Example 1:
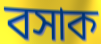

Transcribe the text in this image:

বসাক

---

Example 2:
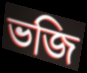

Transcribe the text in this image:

ভজি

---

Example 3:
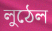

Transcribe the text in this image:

লুঠেল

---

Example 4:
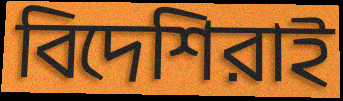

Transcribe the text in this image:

বিদেশিরাই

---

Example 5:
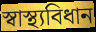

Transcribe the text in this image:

স্বাস্থ্যবিধান